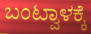
ಬಂಟ್ವಾಳಕ್ಕೆ